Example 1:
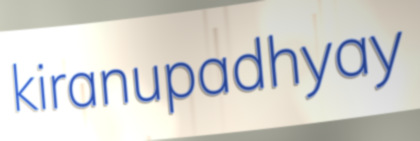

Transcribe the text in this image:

kiranupadhyay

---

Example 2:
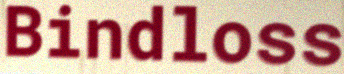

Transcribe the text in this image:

Bindloss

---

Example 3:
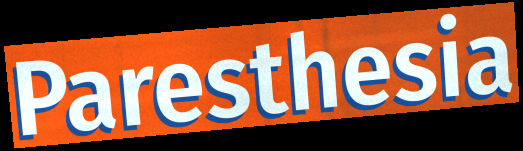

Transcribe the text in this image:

Paresthesia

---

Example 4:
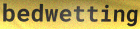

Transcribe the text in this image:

bedwetting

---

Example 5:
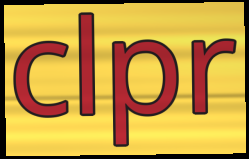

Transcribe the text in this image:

clpr